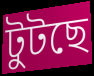
টুটছে